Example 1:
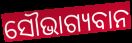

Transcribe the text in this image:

ସୌଭାଗ୍ୟବାନ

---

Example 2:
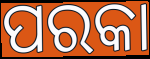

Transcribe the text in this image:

ପରକା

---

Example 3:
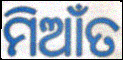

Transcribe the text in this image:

ମିଆଁତ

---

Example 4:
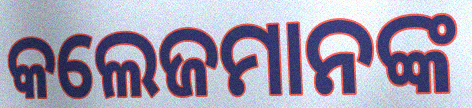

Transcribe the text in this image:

କଲେଜମାନଙ୍କ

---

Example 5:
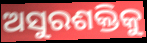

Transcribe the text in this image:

ଅସୁରଶକ୍ତିକୁ